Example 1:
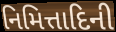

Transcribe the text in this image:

નિમિત્તાદિની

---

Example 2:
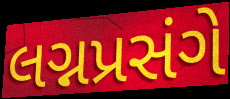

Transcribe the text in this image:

લગ્નપ્રસંગે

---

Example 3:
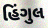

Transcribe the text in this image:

હિંગુલ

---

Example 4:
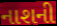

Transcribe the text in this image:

નાશની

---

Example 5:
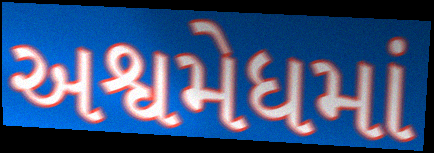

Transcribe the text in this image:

અશ્વમેધમાં